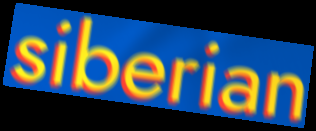
siberian